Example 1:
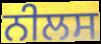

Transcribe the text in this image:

ਨੀਲਸ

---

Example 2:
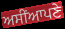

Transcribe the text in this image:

ਅਸੀਂਆਪਣੇ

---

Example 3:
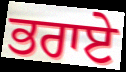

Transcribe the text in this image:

ਭਰਾਏ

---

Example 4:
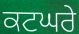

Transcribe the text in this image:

ਕਟਘਰੇ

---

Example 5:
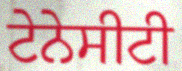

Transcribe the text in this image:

ਟੇਨੇਸੀਟੀ